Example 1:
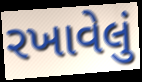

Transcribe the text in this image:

રખાવેલું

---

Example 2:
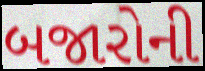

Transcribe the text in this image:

બજારોની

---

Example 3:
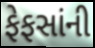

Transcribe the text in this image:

ફેફસાંની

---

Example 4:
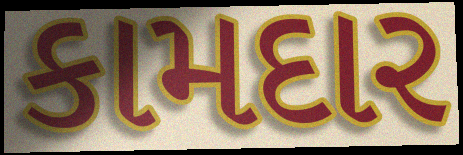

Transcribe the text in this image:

કામદાર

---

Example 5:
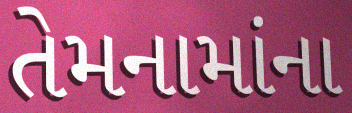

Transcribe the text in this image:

તેમનામાંના